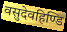
वसुदेवहिण्डि